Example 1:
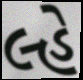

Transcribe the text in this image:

લ્હે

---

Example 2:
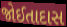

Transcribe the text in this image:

જોઈતાદાસ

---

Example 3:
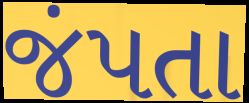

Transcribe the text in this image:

જંપતા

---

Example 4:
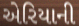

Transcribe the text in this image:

એરિયાની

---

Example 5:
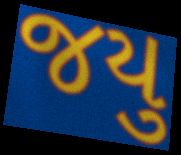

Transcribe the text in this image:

જયુ